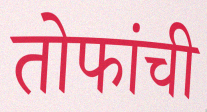
तोफांची